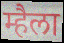
म्हैला